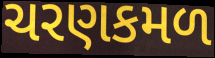
ચરણકમળ